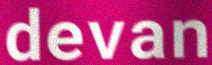
devan